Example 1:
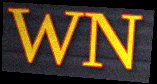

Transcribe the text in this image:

WN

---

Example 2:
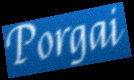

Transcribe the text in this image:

Porgai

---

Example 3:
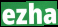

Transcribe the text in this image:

ezha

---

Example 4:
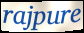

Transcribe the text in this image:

rajpure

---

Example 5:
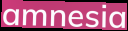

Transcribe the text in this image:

amnesia